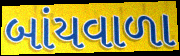
બાંયવાળા